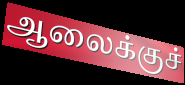
ஆலைக்குச்